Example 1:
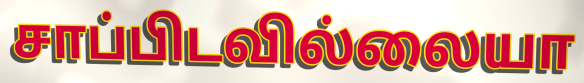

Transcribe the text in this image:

சாப்பிடவில்லையா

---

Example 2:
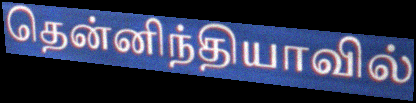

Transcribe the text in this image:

தென்னிந்தியாவில்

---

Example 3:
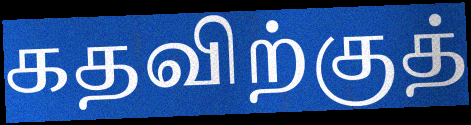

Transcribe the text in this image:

கதவிற்குத்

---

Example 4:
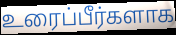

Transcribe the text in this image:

உரைப்பீர்களாக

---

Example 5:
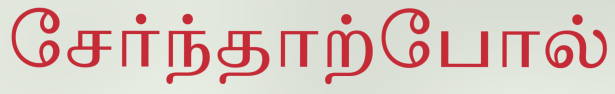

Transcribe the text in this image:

சேர்ந்தாற்போல்